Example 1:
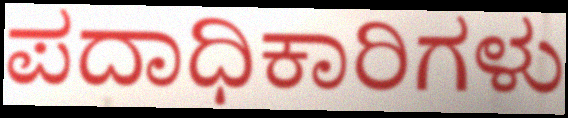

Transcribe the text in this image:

ಪದಾಧಿಕಾರಿಗಳು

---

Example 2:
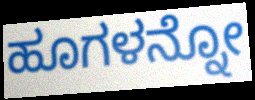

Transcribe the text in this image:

ಹೂಗಳನ್ನೋ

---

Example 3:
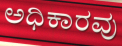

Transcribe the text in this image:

ಅಧಿಕಾರವು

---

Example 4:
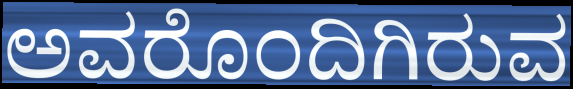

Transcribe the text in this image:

ಅವರೊಂದಿಗಿರುವ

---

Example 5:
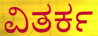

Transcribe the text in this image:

ವಿತರ್ಕ